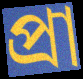
প্রা